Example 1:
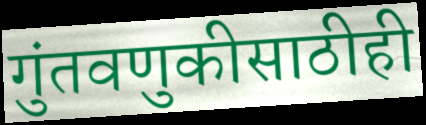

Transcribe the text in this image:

गुंतवणुकीसाठीही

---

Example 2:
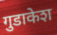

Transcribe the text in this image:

गुडाकेश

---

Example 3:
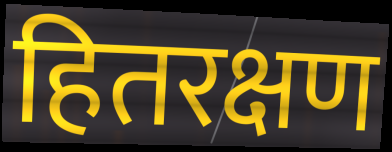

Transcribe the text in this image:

हितरक्षण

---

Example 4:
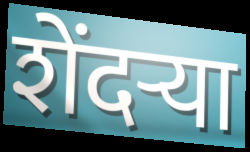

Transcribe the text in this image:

शेंदर्‍या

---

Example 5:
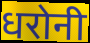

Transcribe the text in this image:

धरोनी